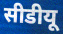
सीडीयू